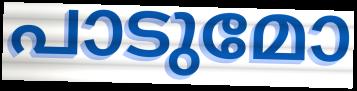
പാടുമോ